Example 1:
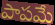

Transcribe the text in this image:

పాపమే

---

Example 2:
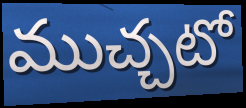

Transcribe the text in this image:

ముచ్చటో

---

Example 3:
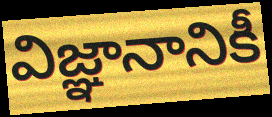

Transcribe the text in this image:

విజ్ఞానానికీ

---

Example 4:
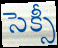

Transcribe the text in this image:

సెక్సీ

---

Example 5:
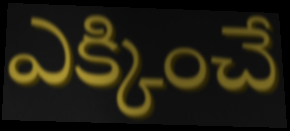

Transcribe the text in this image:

ఎక్కించే